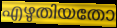
എഴുതിയതോ